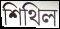
শিথিল